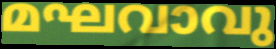
മഘവാവു